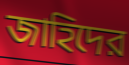
জাহিদের